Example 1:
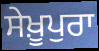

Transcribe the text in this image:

ਸੇਖ਼ੂਪੁਰਾ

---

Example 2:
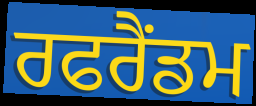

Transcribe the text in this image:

ਰਫਰੈਂਡਮ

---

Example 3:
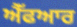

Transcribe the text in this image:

ਐੱਫਆਰ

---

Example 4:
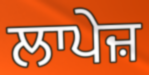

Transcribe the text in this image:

ਲਾਪੇਜ਼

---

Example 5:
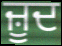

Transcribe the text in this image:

ਜ਼ੂਦ